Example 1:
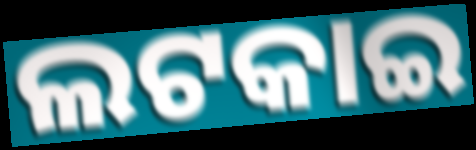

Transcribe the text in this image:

ଲଟକାଇ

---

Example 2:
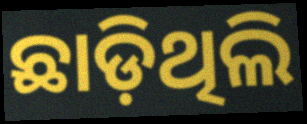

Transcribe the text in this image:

ଛାଡ଼ିଥିଲି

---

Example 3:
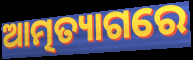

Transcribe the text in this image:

ଆତ୍ମତ୍ୟାଗରେ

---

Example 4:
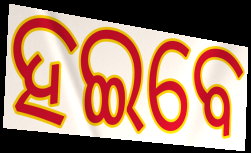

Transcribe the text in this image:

ହଇବେ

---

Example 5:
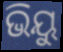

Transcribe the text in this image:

ଭିୟୁ